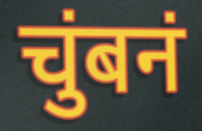
चुंबनं